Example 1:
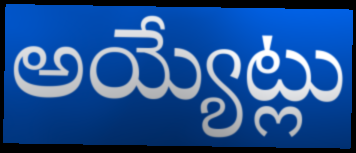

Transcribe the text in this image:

అయ్యేట్లు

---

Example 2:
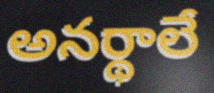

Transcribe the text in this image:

అనర్థాలే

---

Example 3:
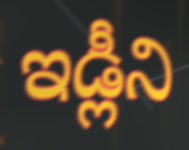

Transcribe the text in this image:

ఇడ్లీని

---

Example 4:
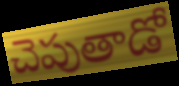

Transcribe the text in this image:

చెపుతాడో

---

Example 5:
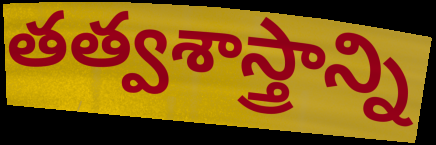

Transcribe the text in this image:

తత్వశాస్త్రాన్ని